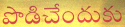
పొడిచేందుకు